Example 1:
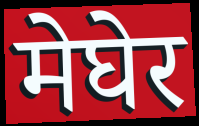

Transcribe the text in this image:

मेघेर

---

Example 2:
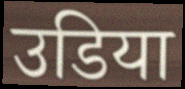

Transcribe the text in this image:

उडिया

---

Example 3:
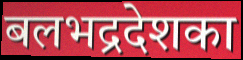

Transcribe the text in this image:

बलभद्रदेशका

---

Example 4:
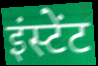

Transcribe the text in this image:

इंस्टेंट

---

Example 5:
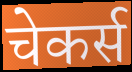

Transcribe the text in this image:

चेकर्स